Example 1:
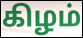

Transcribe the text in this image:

கிழம்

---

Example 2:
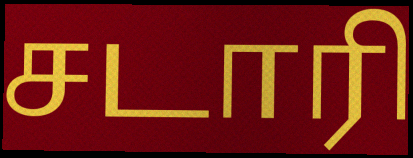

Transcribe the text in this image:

சடாரி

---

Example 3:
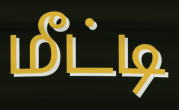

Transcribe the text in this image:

மீட்டி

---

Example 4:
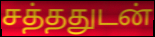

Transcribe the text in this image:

சத்ததுடன்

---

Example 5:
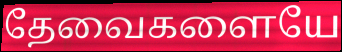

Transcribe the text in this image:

தேவைகளையே